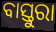
ବାସ୍ତୁରା